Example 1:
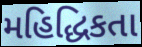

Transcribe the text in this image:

મહિદ્ધિકતા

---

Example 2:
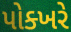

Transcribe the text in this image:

પોક્ખરે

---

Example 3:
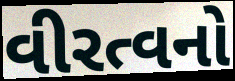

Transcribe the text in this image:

વીરત્વનો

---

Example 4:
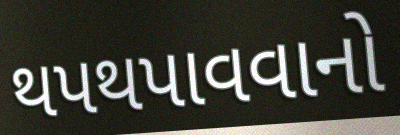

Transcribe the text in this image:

થપથપાવવાનો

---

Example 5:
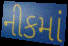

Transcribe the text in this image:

નીકમાં